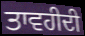
ਤਾਵਹੀਦੀ